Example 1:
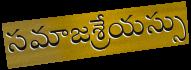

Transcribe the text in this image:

సమాజశ్రేయస్సు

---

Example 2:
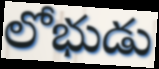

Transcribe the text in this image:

లోభుడు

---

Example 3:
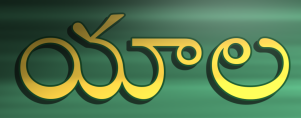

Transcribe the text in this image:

యాల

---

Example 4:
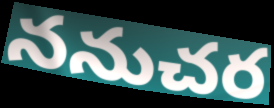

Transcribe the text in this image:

ననుచర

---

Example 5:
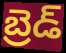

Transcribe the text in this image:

బ్రెడ్